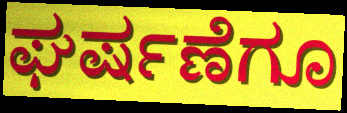
ಘರ್ಷಣೆಗೂ